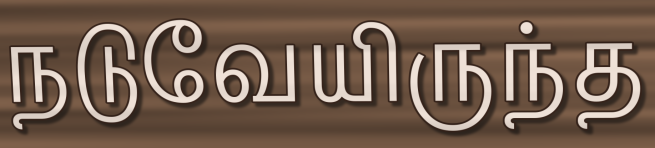
நடுவேயிருந்த